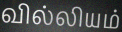
வில்லியம்